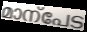
മാന്പേട